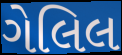
ગેલિલ